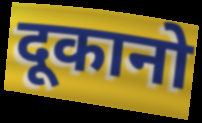
दूकानो